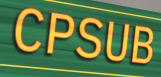
CPSUB